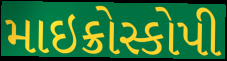
માઇક્રોસ્કોપી